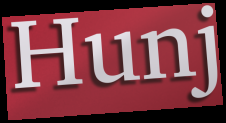
Hunj